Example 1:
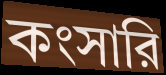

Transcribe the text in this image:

কংসারি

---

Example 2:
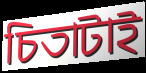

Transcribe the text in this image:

চিতাটাই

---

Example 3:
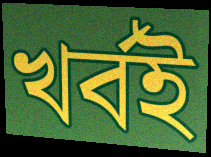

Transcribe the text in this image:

খর্বই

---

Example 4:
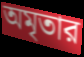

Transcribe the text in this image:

অমৃতার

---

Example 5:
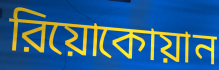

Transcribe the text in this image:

রিয়োকোয়ান